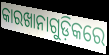
କାରଖାନାଗୁଡ଼ିକରେ